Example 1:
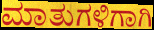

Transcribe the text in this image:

ಮಾತುಗಳಿಗಾಗಿ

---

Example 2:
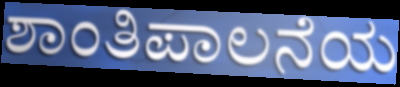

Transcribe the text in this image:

ಶಾಂತಿಪಾಲನೆಯ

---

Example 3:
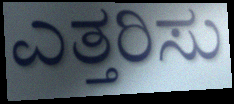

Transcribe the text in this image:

ಎತ್ತರಿಸು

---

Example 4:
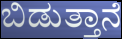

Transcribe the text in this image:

ಬಿಡುತ್ತಾನೆ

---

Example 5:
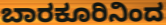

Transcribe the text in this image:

ಬಾರಕೂರಿನಿಂದ